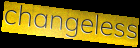
changeless